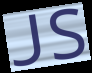
JS